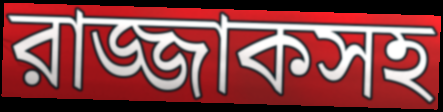
রাজ্জাকসহ